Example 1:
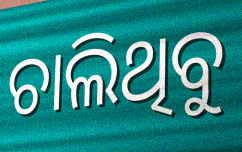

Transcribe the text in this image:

ଚାଲିଥିବୁ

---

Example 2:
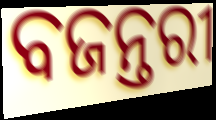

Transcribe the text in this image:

ବଜନ୍ତରୀ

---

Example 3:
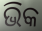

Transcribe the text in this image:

ଭିକ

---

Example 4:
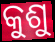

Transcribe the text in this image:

କୁଶୁ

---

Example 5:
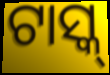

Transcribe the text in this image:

ଟାସ୍କ୍